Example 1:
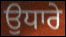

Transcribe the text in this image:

ਉਧਾਰੇ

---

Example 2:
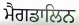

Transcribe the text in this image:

ਮੈਗਡਾਲਿਨ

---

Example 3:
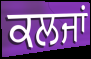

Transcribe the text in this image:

ਕਲਜਾਂ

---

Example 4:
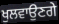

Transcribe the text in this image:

ਖੁਲਵਾਉਣਗੇ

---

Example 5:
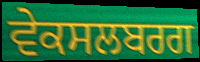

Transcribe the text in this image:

ਵੇਕਸਲਬਰਗ